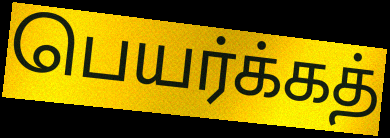
பெயர்க்கத்